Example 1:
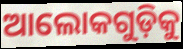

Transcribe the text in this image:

ଆଲୋକଗୁଡ଼ିକୁ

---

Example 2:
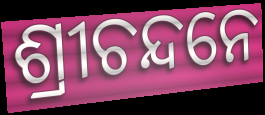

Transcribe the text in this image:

ଶ୍ରୀଚନ୍ଦନେ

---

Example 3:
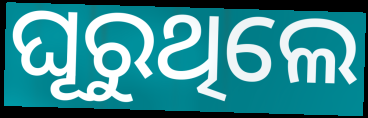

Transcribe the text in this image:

ଘୂରୁଥିଲେ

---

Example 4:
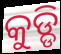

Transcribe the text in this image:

କୁଡ୍ଡି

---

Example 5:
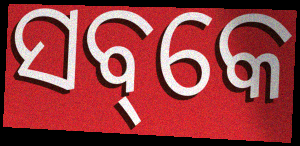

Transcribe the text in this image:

ସବ୍‌କେ